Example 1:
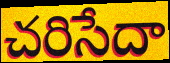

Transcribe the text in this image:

చరిసేదా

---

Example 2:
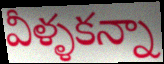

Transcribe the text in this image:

వీళ్ళకన్నా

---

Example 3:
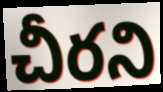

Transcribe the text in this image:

చీరని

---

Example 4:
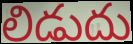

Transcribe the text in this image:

లిడుదు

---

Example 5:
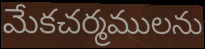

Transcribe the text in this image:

మేకచర్మములను